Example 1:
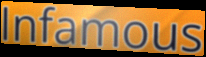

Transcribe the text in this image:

Infamous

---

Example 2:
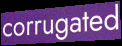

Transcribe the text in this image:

corrugated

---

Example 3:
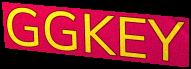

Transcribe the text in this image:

GGKEY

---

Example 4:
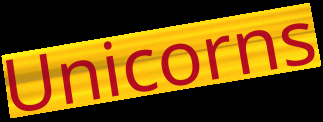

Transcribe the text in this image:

Unicorns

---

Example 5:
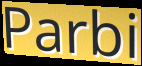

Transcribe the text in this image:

Parbi